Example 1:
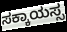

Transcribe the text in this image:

ಸಕ್ಕಾಯಸ್ಸ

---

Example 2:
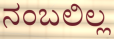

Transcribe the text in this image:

ನಂಬಲಿಲ್ಲ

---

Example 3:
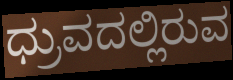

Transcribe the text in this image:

ಧ್ರುವದಲ್ಲಿರುವ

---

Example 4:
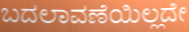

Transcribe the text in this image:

ಬದಲಾವಣೆಯಿಲ್ಲದೇ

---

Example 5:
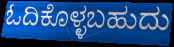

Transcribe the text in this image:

ಓದಿಕೊಳ್ಳಬಹುದು